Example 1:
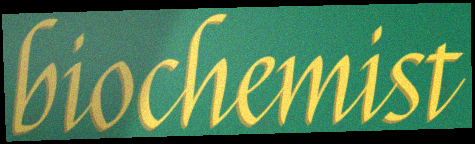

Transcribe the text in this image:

biochemist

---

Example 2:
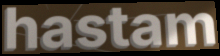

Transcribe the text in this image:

hastam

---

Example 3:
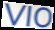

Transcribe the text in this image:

VIO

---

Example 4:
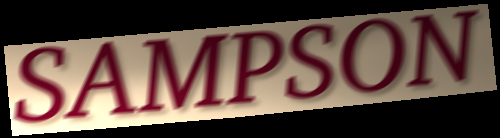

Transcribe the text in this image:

SAMPSON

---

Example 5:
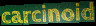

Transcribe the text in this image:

carcinoid